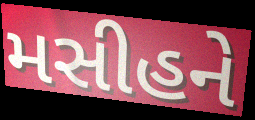
મસીહને